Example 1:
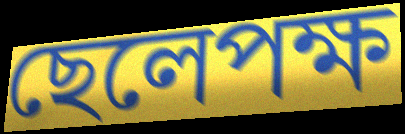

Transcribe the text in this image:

ছেলেপক্ষ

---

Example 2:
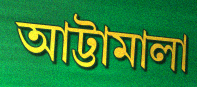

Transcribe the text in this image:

আট্টামালা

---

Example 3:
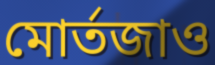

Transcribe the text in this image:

মোর্তজাও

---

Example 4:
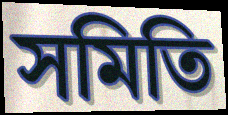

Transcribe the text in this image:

সমিতি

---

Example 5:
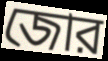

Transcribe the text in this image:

জোর